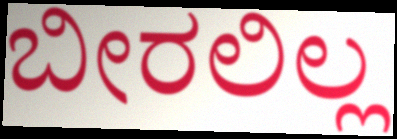
ಬೀರಲಿಲ್ಲ